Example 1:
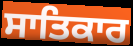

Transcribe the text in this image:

ਸਾਤਿਕਾਰ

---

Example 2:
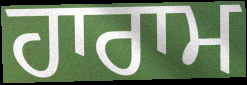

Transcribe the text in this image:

ਹਾਰਾਮ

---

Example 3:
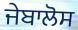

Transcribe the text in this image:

ਜੇਬਾਲੋਸ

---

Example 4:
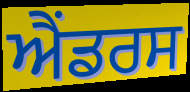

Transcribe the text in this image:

ਐਂਡਰਸ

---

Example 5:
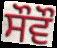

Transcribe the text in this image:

ਸੌਵੌ